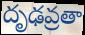
దృఢవ్రతా